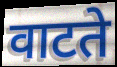
वाटते